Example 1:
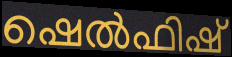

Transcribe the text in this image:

ഷെൽഫിഷ്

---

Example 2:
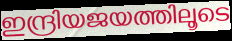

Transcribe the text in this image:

ഇന്ദ്രിയജയത്തിലൂടെ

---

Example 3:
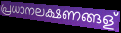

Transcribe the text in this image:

പ്രധാനലക്ഷണങ്ങള്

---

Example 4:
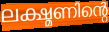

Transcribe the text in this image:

ലക്ഷ്മണിന്റെ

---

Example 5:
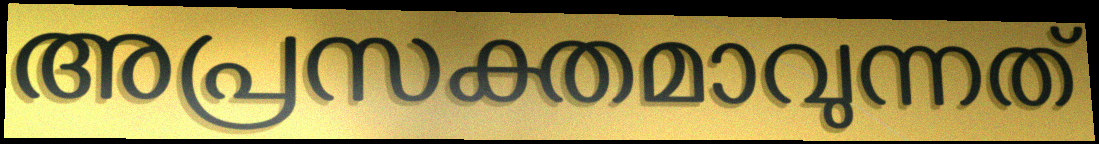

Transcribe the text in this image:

അപ്രസക്തമാവുന്നത്